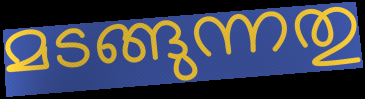
മടങ്ങുന്നതു